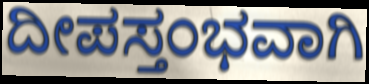
ದೀಪಸ್ತಂಭವಾಗಿ